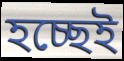
হচ্ছেই